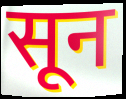
सून